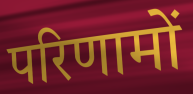
परिणामों